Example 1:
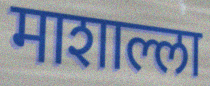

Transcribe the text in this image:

माशाल्ला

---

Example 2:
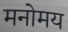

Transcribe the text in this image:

मनोमय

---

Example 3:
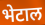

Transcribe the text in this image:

भेटाल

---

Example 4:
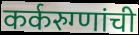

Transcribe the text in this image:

कर्करुग्णांची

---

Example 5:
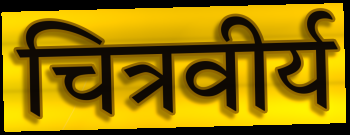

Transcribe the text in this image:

चित्रवीर्य